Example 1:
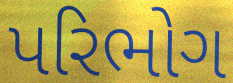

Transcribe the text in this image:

પરિભોગ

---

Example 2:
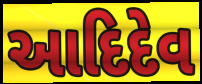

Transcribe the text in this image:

આદિદેવ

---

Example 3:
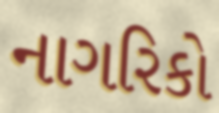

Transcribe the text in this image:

નાગરિકો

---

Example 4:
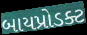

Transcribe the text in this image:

બાયપ્રોડક્ટ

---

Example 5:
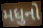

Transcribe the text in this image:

મધુનો